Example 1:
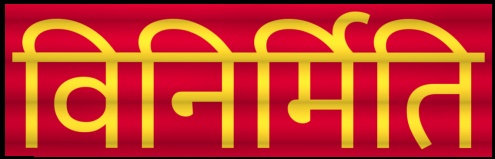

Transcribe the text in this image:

विनिर्मिति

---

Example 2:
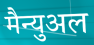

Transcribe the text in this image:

मैन्युअल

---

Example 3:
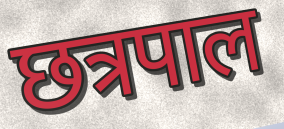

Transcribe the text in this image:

छत्रपाल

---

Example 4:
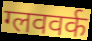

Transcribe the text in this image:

ग्लववर्क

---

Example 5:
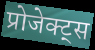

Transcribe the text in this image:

प्रोजेक्ट्स